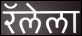
रॅलेला